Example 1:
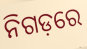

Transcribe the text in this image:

ନିଗଡ଼ରେ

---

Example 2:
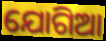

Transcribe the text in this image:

ଯୋଗିଆ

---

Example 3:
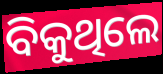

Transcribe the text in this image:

ବିକୁଥିଲେ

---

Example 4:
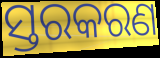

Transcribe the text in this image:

ସ୍ତରକରଣ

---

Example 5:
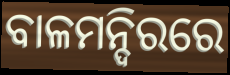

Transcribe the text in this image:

ବାଳମନ୍ଦିରରେ